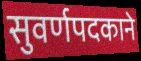
सुवर्णपदकाने